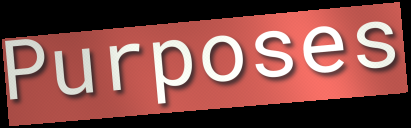
Purposes